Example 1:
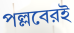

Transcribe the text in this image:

পল্লবেরই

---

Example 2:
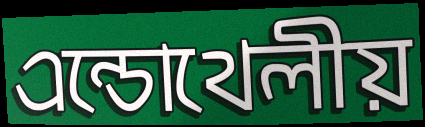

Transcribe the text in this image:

এন্ডোথেলীয়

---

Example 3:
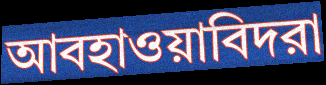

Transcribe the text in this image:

আবহাওয়াবিদরা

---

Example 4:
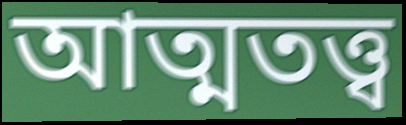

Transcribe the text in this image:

আত্মতত্ত্ব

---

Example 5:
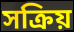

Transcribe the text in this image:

সক্রিয়